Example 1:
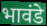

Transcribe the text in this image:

भावंडे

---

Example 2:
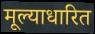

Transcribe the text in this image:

मूल्याधारित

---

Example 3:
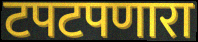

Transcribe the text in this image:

टपटपणारा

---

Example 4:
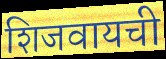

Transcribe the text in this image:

शिजवायची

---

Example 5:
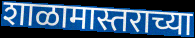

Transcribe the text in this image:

शाळामास्तराच्या